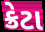
ક્રેટા